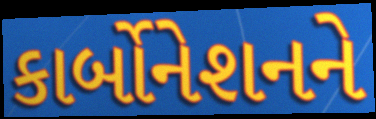
કાર્બોનેશનને